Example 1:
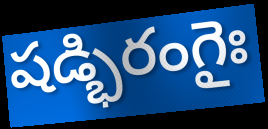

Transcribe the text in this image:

షడ్భిరంగైః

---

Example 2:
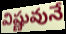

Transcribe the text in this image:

విష్ణువునే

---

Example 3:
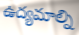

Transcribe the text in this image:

ఉద్యమాల్ని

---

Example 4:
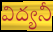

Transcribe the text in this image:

విద్యనీ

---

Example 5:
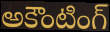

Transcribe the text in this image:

అకౌంటింగ్